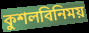
কুশলবিনিময়